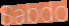
Sabdo